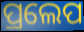
ପ୍ରଲେପ